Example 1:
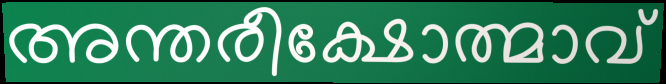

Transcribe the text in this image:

അന്തരീക്ഷോത്മാവ്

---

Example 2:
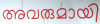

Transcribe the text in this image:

അവരുമായി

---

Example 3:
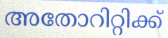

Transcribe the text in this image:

അതോറിറ്റിക്ക്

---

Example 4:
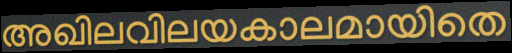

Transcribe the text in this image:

അഖിലവിലയകാലമായിതെ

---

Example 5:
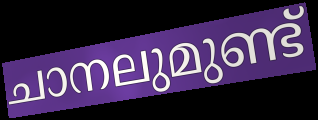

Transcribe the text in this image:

ചാനലുമുണ്ട്